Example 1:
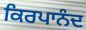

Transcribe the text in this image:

ਕਿਰਪਾਨੰਦ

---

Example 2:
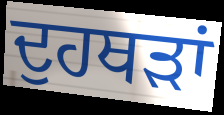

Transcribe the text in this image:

ਦੁਹਥੜਾਂ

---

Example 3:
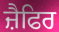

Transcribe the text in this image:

ਜ਼ੈਫਿਰ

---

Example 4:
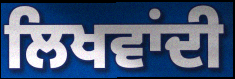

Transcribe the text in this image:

ਲਿਖਵਾਂਦੀ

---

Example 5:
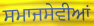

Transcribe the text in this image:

ਸਮਾਜਸੇਵੀਆਂ